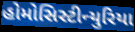
હોમોસિસ્ટીન્યુરિયા